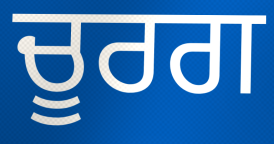
ਚੂਰਗ